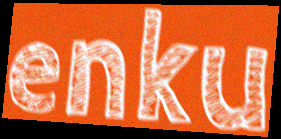
enku